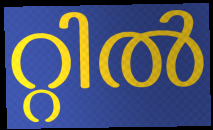
റ്റിൽ